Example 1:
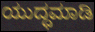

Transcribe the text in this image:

ಯುದ್ಧಮಾಡಿ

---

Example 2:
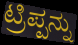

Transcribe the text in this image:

ಟ್ರಿಪ್ಪನ್ನು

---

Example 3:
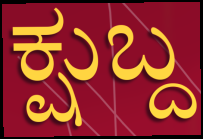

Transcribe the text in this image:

ಕ್ಷುಬ್ದ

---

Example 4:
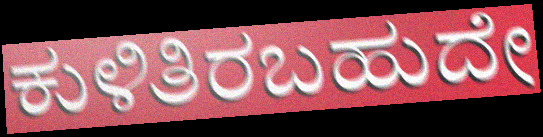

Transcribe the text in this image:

ಕುಳಿತಿರಬಹುದೇ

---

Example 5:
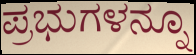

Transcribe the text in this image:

ಪ್ರಭುಗಳನ್ನೂ